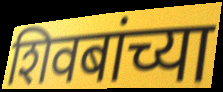
शिवबांच्या